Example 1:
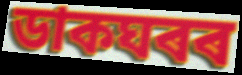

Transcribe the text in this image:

ডাকঘৰৰ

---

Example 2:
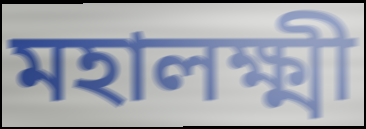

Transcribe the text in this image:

মহালক্ষ্মী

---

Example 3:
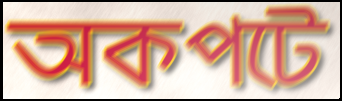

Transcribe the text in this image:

অকপটে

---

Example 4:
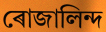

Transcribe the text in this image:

ৰোজালিন্দ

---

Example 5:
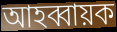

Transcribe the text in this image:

আহব্বায়ক